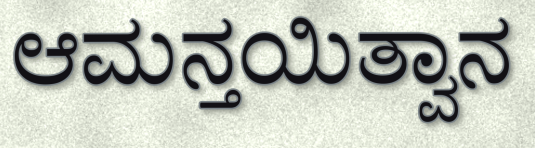
ಆಮನ್ತಯಿತ್ವಾನ